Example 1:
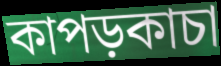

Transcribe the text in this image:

কাপড়কাচা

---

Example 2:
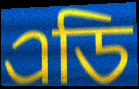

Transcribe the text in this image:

এডি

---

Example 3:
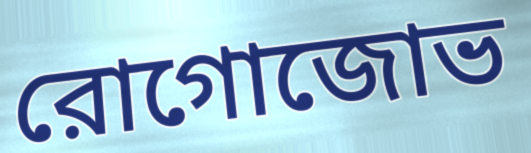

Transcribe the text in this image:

রোগোজোভ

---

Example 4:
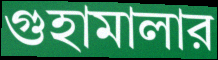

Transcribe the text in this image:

গুহামালার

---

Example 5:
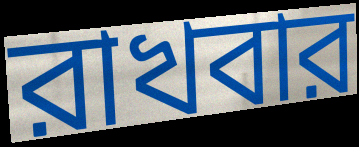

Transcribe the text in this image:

রাখবার